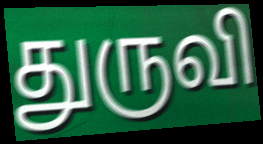
துருவி